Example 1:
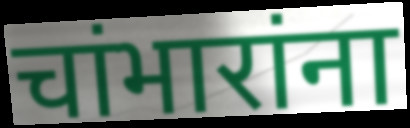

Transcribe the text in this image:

चांभारांना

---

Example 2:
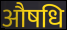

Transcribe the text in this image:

औषधि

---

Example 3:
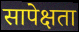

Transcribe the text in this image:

सापेक्षता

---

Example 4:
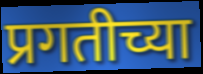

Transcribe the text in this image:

प्रगतीच्या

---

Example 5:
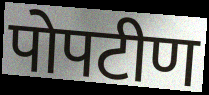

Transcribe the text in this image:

पोपटीण